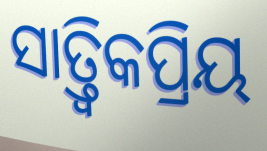
ସାତ୍ତ୍ଵିକପ୍ରିୟ